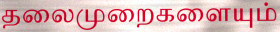
தலைமுறைகளையும்